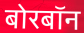
बोरबॉन